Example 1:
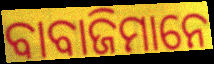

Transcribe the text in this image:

ବାବାଜିମାନେ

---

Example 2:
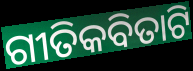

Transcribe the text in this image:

ଗୀତିକବିତାଟି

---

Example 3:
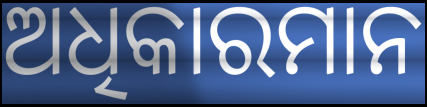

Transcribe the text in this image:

ଅଧିକାରମାନ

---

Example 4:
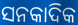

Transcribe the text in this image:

ସନକାଦିକ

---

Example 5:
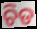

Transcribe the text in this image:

ଚିଡ